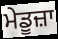
ਮੇਡੂਜ਼ਾ